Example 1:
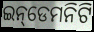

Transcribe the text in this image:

ଇନ୍‌ଡେମନିଟି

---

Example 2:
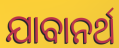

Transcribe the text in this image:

ଯାବାନର୍ଥ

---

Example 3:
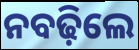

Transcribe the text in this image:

ନବଢ଼ିଲେ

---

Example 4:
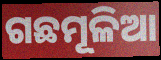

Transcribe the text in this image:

ଗଛମୂଳିଆ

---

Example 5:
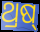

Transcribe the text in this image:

ଥ୍ରଷ୍